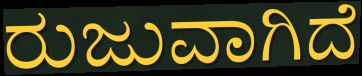
ರುಜುವಾಗಿದೆ